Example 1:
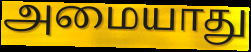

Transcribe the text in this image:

அமையாது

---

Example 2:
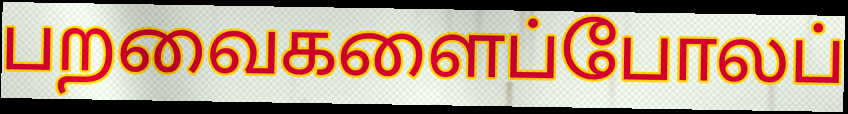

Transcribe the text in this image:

பறவைகளைப்போலப்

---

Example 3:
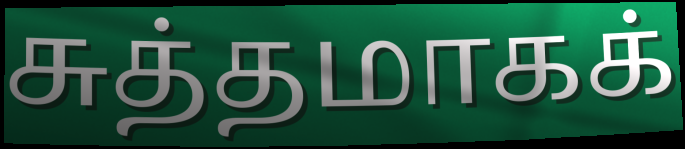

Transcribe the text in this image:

சுத்தமாகக்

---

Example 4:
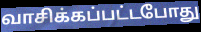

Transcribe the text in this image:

வாசிக்கப்பட்டபோது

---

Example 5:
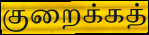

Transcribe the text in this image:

குறைக்கத்